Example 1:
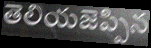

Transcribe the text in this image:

తెలియజెప్పిన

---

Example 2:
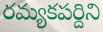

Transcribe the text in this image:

రమ్యకపర్దిని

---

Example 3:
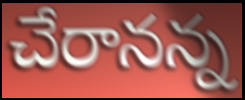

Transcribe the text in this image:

చేరానన్న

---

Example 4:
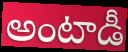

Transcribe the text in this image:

అంటాడీ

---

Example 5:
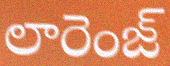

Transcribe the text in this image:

లారెంజ్